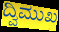
ದ್ವಿಮುಖ